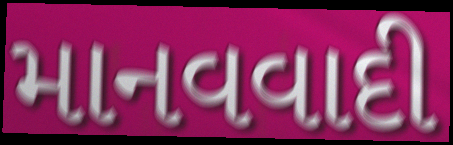
માનવવાદી